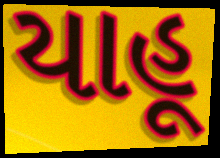
યાહૂ